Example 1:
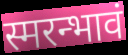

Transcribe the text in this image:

स्मरन्भावं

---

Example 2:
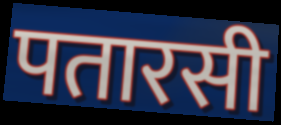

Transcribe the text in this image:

पतारसी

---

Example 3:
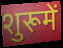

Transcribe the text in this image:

शुरूमें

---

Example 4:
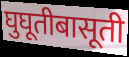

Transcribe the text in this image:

घुघूतीबासूती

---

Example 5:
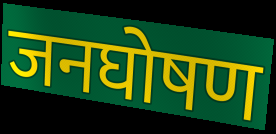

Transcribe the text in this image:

जनघोषण